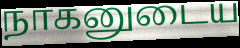
நாகனுடைய